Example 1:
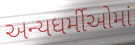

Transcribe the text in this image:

અન્યધર્મીઓમાં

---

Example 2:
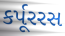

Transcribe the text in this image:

કર્પૂરરસ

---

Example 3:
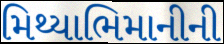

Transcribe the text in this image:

મિથ્યાભિમાનીની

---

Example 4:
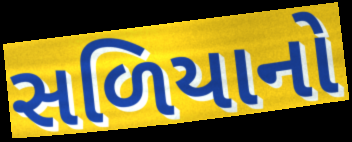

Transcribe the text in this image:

સળિયાનો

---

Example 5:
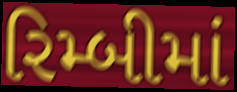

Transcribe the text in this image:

રિમ્બીમાં